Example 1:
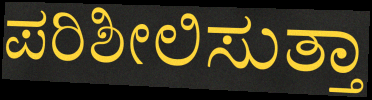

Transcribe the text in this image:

ಪರಿಶೀಲಿಸುತ್ತಾ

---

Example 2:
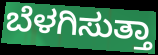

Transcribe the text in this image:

ಬೆಳಗಿಸುತ್ತಾ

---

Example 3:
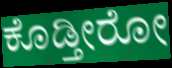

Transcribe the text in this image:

ಕೊಡ್ತೀರೋ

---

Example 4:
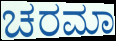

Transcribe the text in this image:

ಚರಮಾ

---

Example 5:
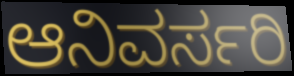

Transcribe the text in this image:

ಆನಿವರ್ಸರಿ